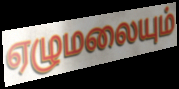
ஏழுமலையும்